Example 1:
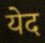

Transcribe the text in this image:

येद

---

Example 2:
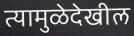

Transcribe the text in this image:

त्यामुळेदेखील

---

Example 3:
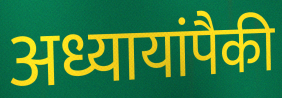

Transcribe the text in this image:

अध्यायांपैकी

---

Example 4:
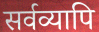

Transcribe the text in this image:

सर्वव्यापि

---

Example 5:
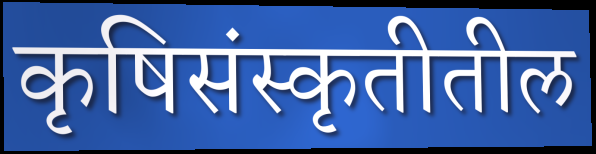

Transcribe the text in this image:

कृषिसंस्कृतीतील